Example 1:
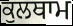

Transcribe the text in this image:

ਕੁਲਥਾਮ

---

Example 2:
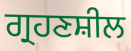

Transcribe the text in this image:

ਗ੍ਰਹਣਸ਼ੀਲ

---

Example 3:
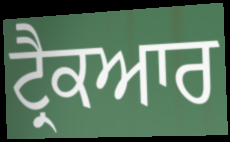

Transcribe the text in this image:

ਟ੍ਰੈਕਆਰ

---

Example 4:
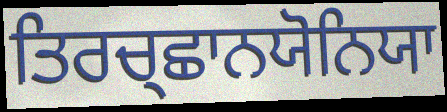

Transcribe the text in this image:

ਤਿਰਚ੍ਛਾਨਯੋਨਿਯਾ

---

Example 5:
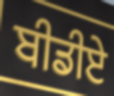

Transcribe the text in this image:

ਬੀਡੀਏ